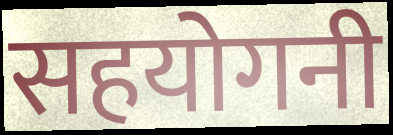
सहयोगनी